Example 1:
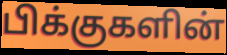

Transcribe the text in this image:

பிக்குகளின்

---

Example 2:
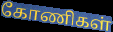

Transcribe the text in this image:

கோணிகள்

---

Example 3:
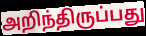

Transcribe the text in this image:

அறிந்திருப்பது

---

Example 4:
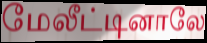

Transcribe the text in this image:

மேலீட்டினாலே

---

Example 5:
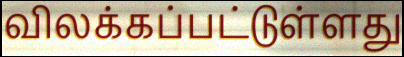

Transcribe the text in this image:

விலக்கப்பட்டுள்ளது